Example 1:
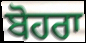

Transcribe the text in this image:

ਬੋਹਰਾ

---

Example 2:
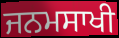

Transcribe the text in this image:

ਜਨਮਸਾਖੀ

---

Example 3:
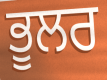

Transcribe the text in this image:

ਭੂਲਰ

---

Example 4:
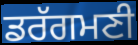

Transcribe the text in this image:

ਡਰੱਗਮਣੀ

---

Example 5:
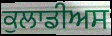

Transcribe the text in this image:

ਕੁਲਾਡੀਅਸ